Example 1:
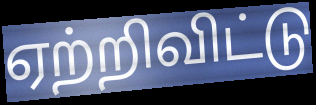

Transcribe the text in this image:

ஏற்றிவிட்டு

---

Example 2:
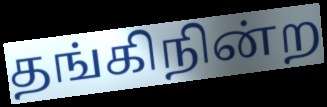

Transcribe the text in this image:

தங்கிநின்ற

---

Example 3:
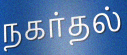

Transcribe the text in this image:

நகர்தல்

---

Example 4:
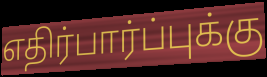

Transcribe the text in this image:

எதிர்பார்ப்புக்கு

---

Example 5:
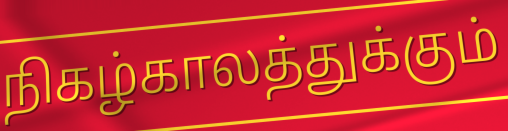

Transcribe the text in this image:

நிகழ்காலத்துக்கும்